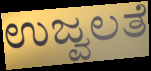
ಉಜ್ವಲತೆ